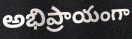
అభిప్రాయంగా